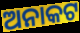
ଅନାକଟ